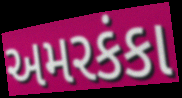
અમરકંકા